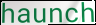
haunch